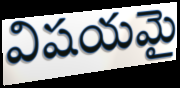
విషయమై